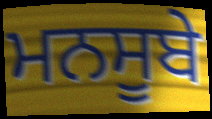
ਮਨਸੂਬੇ